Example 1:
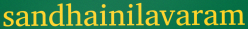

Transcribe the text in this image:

sandhainilavaram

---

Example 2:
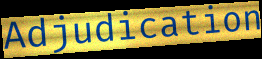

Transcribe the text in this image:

Adjudication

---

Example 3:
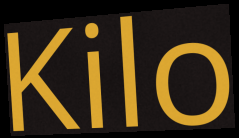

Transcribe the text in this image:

Kilo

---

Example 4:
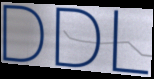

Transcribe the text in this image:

DDL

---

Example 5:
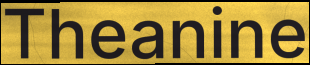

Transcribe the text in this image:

Theanine